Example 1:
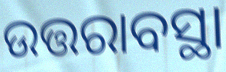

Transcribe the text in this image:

ଉତ୍ତରାବସ୍ଥା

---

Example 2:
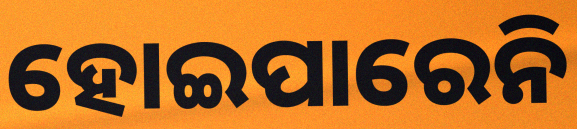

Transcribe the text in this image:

ହୋଇପାରେନି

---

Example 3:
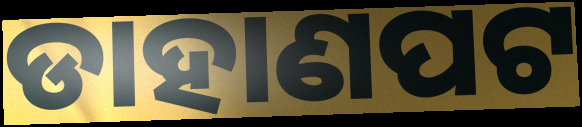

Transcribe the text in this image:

ଡାହାଣପଟ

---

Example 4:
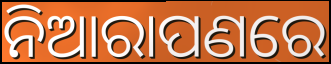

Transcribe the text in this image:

ନିଆରାପଣରେ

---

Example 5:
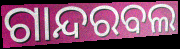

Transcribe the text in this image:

ଗାନ୍ଦରବଲ